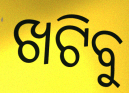
ଖଟିବୁ